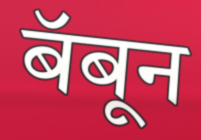
बॅबून